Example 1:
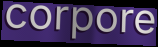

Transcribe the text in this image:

corpore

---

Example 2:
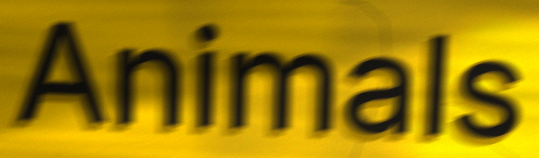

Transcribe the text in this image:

Animals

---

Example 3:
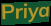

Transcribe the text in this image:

Priya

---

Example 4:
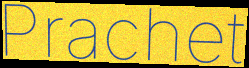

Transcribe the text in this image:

Prachet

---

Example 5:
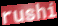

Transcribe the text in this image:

rushi